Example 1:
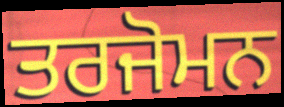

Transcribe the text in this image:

ਤਰਜੋਮਨ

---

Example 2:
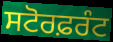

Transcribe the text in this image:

ਸਟੋਰਫ਼ਰੰਟ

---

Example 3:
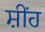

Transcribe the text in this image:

ਸ਼ੀਂਹ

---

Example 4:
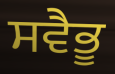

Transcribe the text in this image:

ਸਵੈਭੂ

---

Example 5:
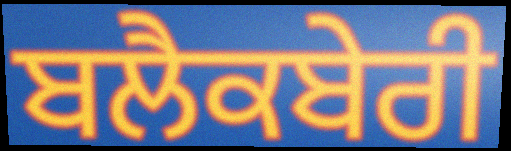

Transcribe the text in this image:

ਬਲੈਕਬੇਰੀ